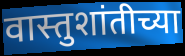
वास्तुशांतीच्या